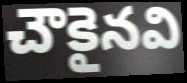
చౌకైనవి